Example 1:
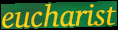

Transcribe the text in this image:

eucharist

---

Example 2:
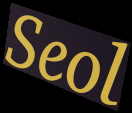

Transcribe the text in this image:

Seol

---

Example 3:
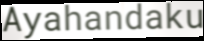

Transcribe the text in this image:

Ayahandaku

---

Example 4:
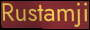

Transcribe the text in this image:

Rustamji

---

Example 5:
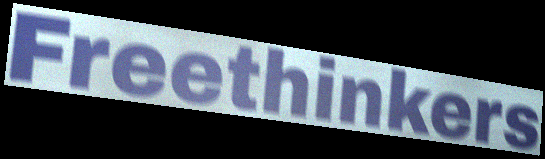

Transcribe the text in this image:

Freethinkers